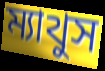
ম্যাথুস